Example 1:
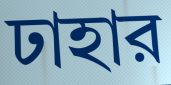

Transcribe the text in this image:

ঢাহার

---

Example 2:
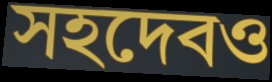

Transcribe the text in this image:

সহদেবও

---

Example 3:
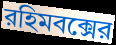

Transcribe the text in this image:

রহিমবক্সের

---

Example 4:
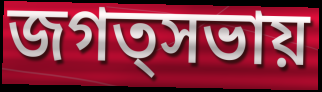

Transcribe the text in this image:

জগত্সভায়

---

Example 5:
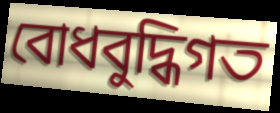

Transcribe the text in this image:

বোধবুদ্ধিগত